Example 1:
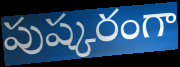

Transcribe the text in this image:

పుష్కరంగా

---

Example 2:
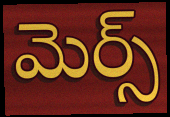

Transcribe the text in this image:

మెర్స్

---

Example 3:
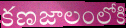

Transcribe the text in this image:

కణజాలంలోకి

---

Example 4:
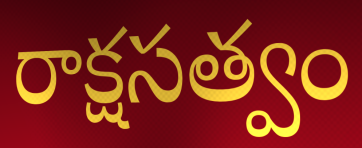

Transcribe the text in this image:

రాక్షసత్వం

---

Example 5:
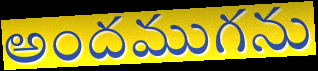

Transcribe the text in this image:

అందముగను